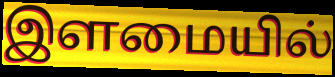
இளமையில்